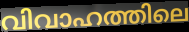
വിവാഹത്തിലെ